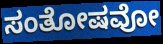
ಸಂತೋಷವೋ